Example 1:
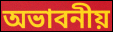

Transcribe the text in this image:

অভাবনীয়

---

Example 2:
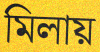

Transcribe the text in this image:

মিলায়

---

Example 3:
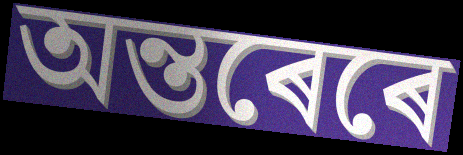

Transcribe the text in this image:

অন্তৰেৰে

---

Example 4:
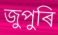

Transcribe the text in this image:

জুপুৰি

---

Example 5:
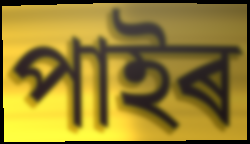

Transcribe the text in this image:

পাইৰ